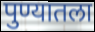
पुण्यातला